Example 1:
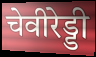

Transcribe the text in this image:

चेवीरेड्डी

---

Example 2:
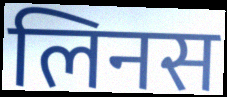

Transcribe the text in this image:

लिनस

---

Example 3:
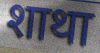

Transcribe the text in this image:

शाथा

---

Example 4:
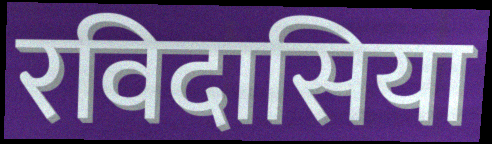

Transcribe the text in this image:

रविदासिया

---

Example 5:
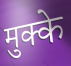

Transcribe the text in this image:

मुक्के